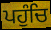
ਪਹੁੰਚਿ